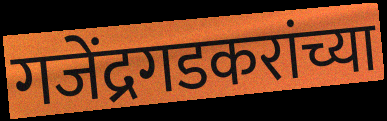
गजेंद्रगडकरांच्या